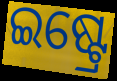
ଇଷ୍ଟ୍ରେ